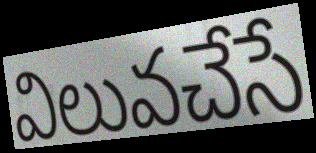
విలువచేసే